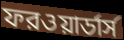
ফরওয়ার্ডার্স